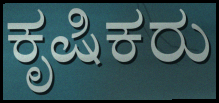
ಕೃಷಿಕರು